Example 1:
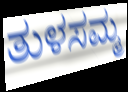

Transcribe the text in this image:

ತುಳಸಮ್ಮ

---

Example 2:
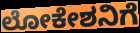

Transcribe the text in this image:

ಲೋಕೇಶನಿಗೆ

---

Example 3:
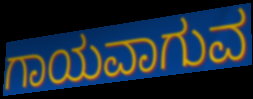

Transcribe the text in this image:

ಗಾಯವಾಗುವ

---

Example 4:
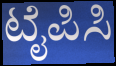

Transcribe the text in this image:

ಟೈಪಿಸಿ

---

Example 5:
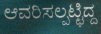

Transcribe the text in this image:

ಆವರಿಸಲ್ಪಟ್ಟಿದ್ದ